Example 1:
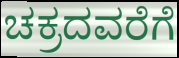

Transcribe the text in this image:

ಚಕ್ರದವರೆಗೆ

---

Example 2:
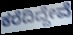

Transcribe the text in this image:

ಕರೆದಿದ್ದೇವೆ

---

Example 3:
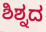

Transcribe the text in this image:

ಶಿಶ್ನದ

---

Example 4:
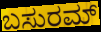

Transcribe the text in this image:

ಬಸುರಮ್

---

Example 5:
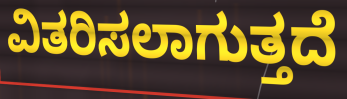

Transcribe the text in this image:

ವಿತರಿಸಲಾಗುತ್ತದೆ